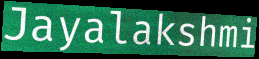
Jayalakshmi